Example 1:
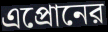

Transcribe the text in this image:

এপ্রোনের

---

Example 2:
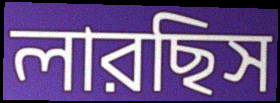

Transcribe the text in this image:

লারছিস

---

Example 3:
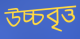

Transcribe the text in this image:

উচ্চবৃত্ত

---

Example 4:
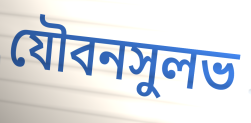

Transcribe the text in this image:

যৌবনসুলভ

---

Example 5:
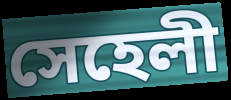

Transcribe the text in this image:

সেহেলী